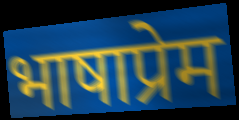
भाषाप्रेम